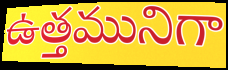
ఉత్తమునిగా